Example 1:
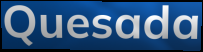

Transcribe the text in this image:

Quesada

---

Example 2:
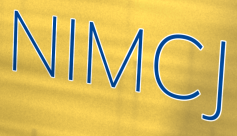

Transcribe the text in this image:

NIMCJ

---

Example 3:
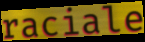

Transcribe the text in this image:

raciale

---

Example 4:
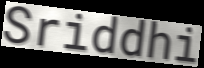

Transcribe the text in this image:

Sriddhi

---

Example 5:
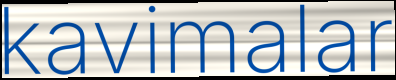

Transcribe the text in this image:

kavimalar